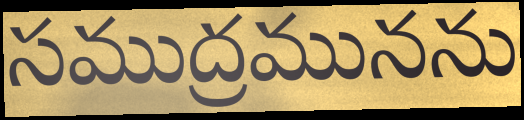
సముద్రమునను